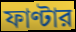
ফাণ্টার